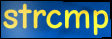
strcmp